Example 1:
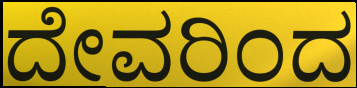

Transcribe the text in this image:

ದೇವರಿಂದ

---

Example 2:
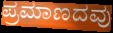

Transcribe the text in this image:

ಪ್ರಮಾಣದವು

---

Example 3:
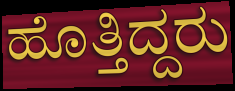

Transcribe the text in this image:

ಹೊತ್ತಿದ್ದರು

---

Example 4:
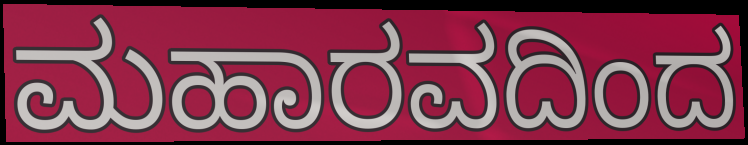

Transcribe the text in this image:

ಮಹಾರವದಿಂದ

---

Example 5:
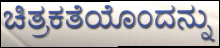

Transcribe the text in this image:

ಚಿತ್ರಕತೆಯೊಂದನ್ನು